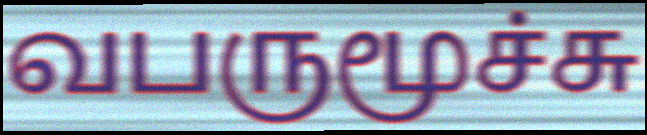
வபருமூச்சு